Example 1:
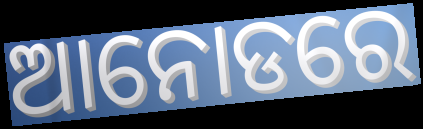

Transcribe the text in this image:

ଆନୋଡରେ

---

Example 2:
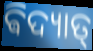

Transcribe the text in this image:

ଵିଦ୍ଯାତ୍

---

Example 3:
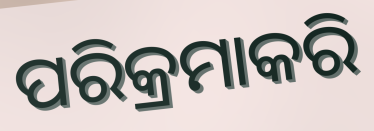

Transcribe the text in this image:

ପରିକ୍ରମାକରି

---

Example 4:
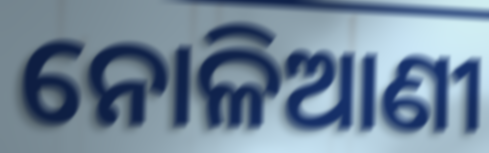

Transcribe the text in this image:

ନୋଳିଆଣୀ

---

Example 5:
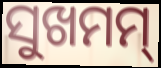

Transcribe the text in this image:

ସୁଖମମ୍